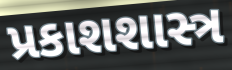
પ્રકાશશાસ્ત્ર